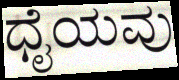
ಧೈಯವು